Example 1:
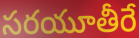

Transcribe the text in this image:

సరయూతీరే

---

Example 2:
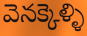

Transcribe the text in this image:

వెనక్కెళ్ళి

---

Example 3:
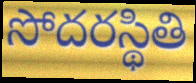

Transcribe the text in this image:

సోదరస్థితి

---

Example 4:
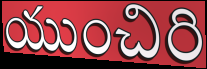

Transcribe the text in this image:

యుంచిరి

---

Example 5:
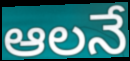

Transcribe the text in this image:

ఆలనే